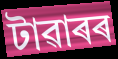
টাৱাৰৰ